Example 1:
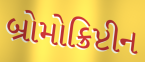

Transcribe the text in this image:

બ્રોમોક્રિપ્ટીન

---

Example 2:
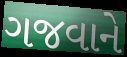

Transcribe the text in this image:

ગજવાને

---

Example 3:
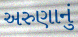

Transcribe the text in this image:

અરુણાનું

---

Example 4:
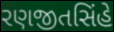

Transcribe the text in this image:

રણજીતસિંહે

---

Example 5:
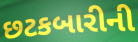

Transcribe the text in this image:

છટકબારીની